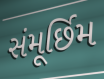
સંમૂર્છિમ